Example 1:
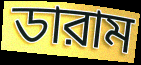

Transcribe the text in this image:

ডারাম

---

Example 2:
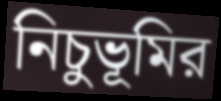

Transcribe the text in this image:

নিচুভূমির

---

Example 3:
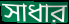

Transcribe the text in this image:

সাধার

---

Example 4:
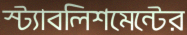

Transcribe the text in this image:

স্ট্যাবলিশমেন্টের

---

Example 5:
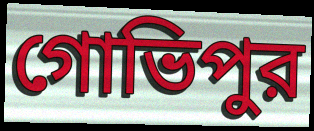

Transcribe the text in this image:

গোভিপুর